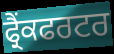
ਫ੍ਰੈਂਕਫਰਟਰ